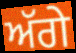
ਅੱਗੇ